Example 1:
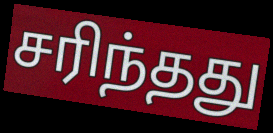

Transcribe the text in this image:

சரிந்தது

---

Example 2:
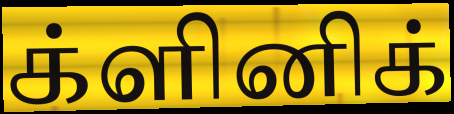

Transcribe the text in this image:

க்ளினிக்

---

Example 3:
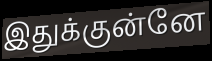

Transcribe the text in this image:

இதுக்குன்னே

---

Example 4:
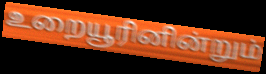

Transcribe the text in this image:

உறையூரினின்றும்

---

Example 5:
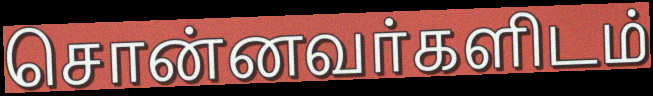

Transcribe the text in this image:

சொன்னவர்களிடம்